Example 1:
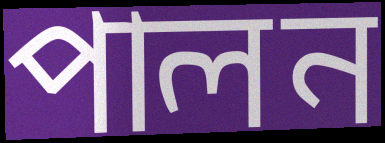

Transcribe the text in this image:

পালন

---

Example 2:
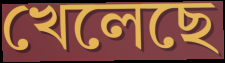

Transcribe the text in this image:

খেলেছে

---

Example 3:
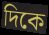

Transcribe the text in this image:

দিকে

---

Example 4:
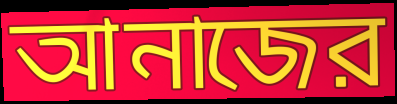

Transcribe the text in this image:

আনাজের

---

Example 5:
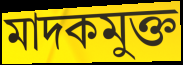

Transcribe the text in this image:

মাদকমুক্ত